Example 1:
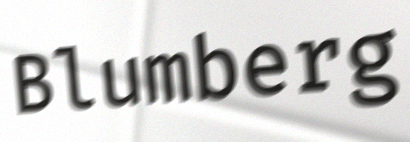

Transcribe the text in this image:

Blumberg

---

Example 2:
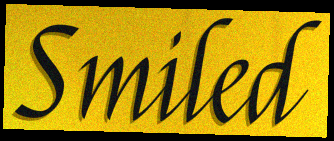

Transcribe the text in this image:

Smiled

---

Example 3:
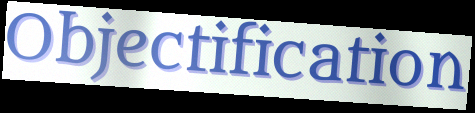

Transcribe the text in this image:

Objectification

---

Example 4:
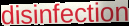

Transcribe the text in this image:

disinfection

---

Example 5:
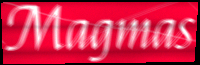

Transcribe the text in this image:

Magmas